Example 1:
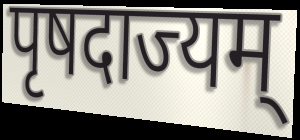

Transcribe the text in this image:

पृषदाज्यम्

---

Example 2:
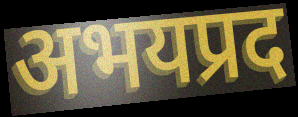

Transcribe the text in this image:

अभयप्रद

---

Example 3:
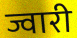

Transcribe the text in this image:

ज्वारी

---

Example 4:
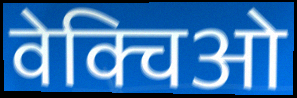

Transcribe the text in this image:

वेक्चिओ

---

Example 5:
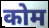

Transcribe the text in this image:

कोम